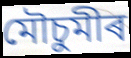
মৌচুমীৰ